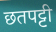
छतपट्टी